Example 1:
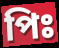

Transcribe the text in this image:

পিঃ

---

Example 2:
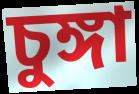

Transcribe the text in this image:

চুঙ্গা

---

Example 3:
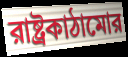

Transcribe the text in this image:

রাষ্ট্রকাঠামোর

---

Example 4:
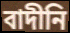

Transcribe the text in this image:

বাদীনি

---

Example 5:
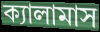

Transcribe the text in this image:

ক্যালামাস